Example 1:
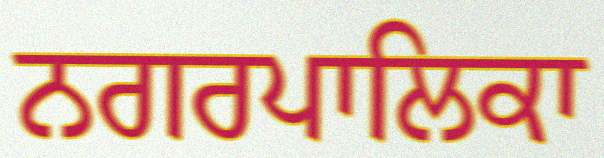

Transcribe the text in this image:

ਨਗਰਪਾਲਿਕਾ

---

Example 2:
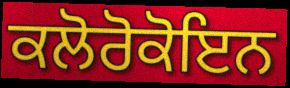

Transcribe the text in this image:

ਕਲੋਰੋਕੋਇਨ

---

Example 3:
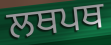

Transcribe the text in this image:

ਲਥਪਥ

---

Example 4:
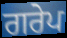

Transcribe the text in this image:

ਗਰੇਪ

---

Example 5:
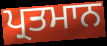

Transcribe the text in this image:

ਪ੍ਰਤਮਾਨ